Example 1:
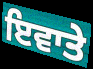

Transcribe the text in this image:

ਇਵਾਤੇ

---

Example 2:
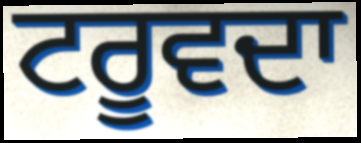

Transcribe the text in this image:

ਟਰੂਵਦਾ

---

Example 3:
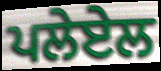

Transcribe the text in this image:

ਪਲੇਏਲ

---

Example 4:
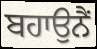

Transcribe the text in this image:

ਬਹਾਉਨੈਂ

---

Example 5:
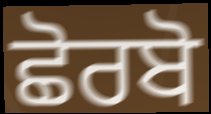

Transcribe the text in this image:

ਛੋਰਬੋ